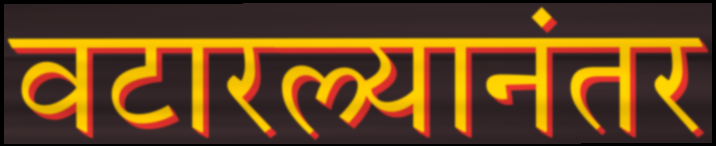
वटारल्यानंतर